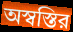
অস্বস্তির